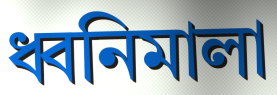
ধ্বনিমালা